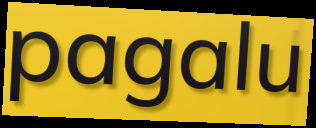
pagalu